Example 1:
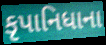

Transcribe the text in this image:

કૃપાનિધાના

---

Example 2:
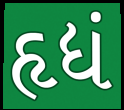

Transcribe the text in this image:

હૃદ્યં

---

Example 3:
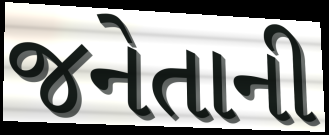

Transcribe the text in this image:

જનેતાની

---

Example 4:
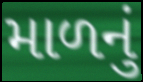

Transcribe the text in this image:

માળનું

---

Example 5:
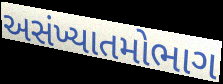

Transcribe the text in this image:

અસંખ્યાતમોભાગ